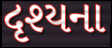
દૃશ્યના